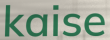
kaise